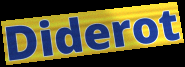
Diderot